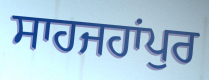
ਸਾਹਜਹਾਂਪੁਰ